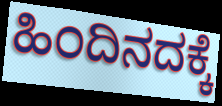
ಹಿಂದಿನದಕ್ಕೆ